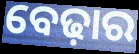
ବେଢ଼ାର